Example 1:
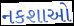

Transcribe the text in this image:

નકશાઓ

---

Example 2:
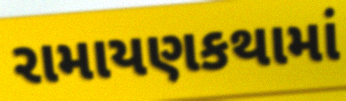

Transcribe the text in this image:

રામાયણકથામાં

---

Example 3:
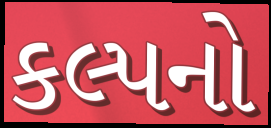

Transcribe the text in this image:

કલ્પનો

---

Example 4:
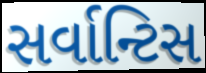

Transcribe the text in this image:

સર્વાન્ટિસ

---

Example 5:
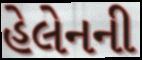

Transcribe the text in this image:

હેલેનની